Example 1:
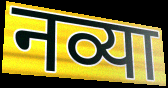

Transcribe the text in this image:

नव्या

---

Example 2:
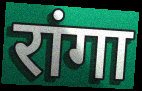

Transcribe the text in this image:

रांगा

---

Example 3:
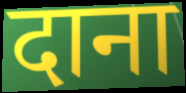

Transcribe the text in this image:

दाना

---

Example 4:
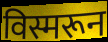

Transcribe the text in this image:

विस्मरून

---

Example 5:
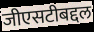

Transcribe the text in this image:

जीएसटीबद्दल